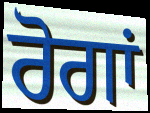
ਰੋਗਾਂ